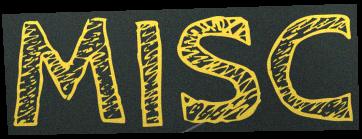
MISC